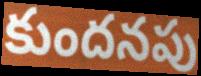
కుందనపు